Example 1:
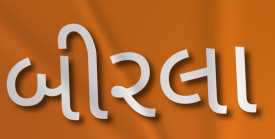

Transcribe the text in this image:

બીરલા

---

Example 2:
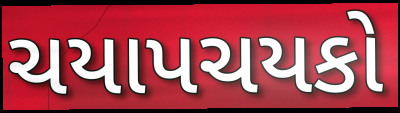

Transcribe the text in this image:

ચયાપચયકો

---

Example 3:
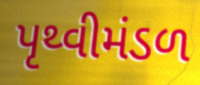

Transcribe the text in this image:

પૃથ્વીમંડળ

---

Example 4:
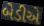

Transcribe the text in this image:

બેડીએ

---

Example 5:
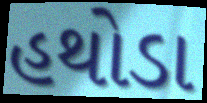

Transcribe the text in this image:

હથોડા